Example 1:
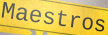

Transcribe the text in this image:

Maestros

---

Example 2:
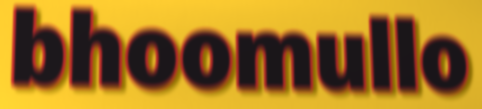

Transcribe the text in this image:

bhoomullo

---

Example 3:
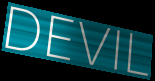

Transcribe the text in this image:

DEVIL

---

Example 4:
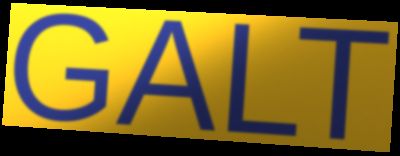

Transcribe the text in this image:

GALT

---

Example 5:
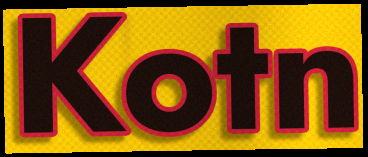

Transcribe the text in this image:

Kotn